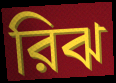
রিঝ